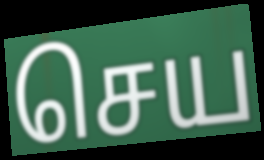
செய